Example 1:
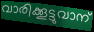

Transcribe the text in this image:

വാരിക്കൂട്ടുവാന്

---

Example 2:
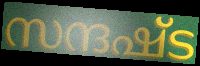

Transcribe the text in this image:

സന്ദഷ്ട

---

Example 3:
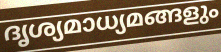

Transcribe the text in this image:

ദൃശ്യമാധ്യമങ്ങളും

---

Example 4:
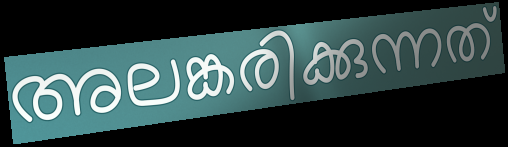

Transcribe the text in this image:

അലങ്കരിക്കുന്നത്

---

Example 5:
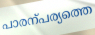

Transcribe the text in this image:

പാരന്പര്യത്തെ